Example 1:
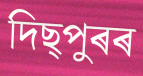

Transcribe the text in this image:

দিছ্পুৰৰ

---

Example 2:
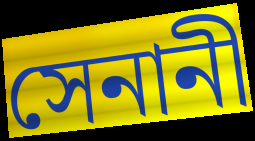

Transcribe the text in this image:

সেনানী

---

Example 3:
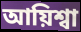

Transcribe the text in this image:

আয়িশ্বা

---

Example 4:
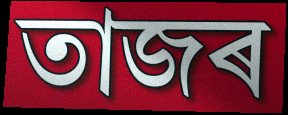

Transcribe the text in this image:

তাজৰ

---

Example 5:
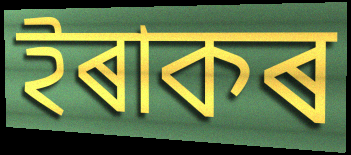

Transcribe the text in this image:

ইৰাকৰ